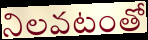
నిలవటంతో